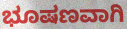
ಭೂಷಣವಾಗಿ